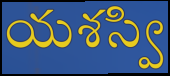
యశస్వి